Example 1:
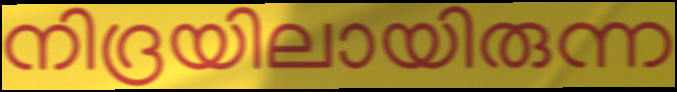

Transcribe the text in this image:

നിദ്രയിലായിരുന്ന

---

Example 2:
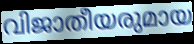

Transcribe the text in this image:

വിജാതീയരുമായ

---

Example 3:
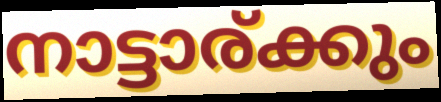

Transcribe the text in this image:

നാട്ടാര്ക്കും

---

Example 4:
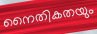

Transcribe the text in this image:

നൈതികതയും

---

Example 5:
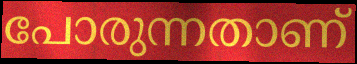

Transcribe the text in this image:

പോരുന്നതാണ്